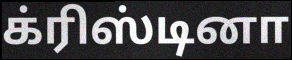
க்ரிஸ்டினா